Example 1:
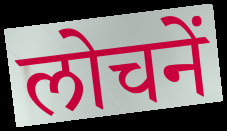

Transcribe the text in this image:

लोचनें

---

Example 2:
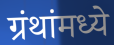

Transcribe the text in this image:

ग्रंथांमध्ये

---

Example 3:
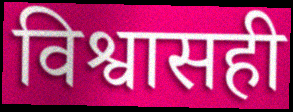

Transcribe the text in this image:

विश्वासही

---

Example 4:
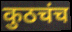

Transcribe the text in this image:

कुठचंच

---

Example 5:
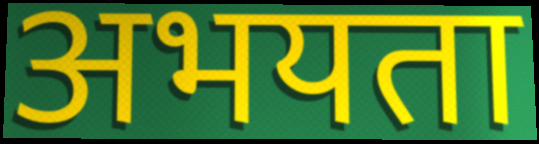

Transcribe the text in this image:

अभयता